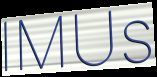
IMUs